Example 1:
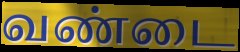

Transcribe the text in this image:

வண்டை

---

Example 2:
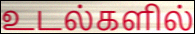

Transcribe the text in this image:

உடல்களில்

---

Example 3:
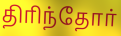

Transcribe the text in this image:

திரிந்தோர்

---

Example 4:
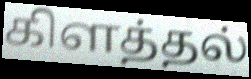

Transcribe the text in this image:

கிளத்தல்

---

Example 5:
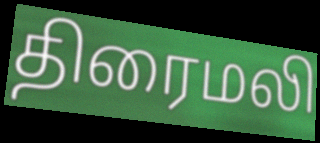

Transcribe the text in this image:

திரைமலி